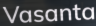
Vasanta